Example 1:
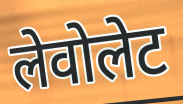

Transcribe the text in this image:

लेवोलेट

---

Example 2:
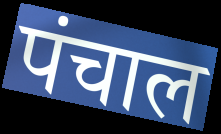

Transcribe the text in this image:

पंचाल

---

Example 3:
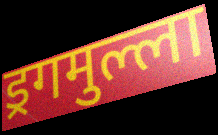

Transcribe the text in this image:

ड्रगमुल्ला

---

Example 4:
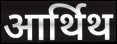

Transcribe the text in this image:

आर्थिथ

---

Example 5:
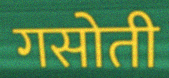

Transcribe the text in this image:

गसोती